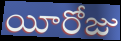
యీరోజు